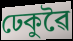
ঢেকুৱৈ